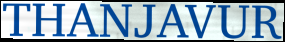
THANJAVUR